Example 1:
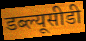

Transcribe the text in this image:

डब्ल्यूसीडी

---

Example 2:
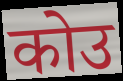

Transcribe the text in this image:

कोउ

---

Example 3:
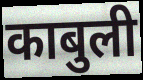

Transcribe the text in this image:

काबुली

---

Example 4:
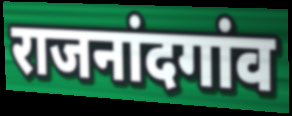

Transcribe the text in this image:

राजनांदगांव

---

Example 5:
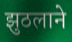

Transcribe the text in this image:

झुठलाने